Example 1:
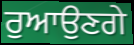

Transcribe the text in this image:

ਰੁਆਉਣਗੇ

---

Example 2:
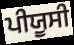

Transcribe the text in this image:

ਪੀਯੂਸੀ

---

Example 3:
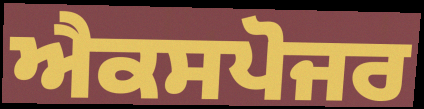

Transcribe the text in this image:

ਐਕਸਪੋਜਰ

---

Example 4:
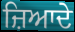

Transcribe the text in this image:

ਜ਼ਿਆਦੇ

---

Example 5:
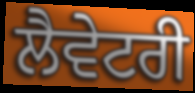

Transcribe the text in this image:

ਲੈਵੇਟਰੀ